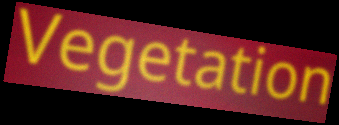
Vegetation